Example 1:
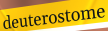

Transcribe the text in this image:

deuterostome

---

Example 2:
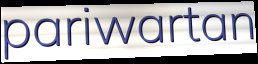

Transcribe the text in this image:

pariwartan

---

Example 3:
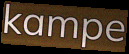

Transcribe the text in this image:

kampe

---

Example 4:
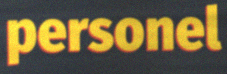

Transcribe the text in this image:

personel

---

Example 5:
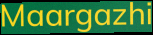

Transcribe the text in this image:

Maargazhi